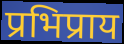
प्रभिप्राय